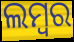
ଲମ୍ବର